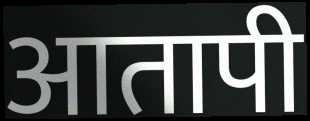
आतापी